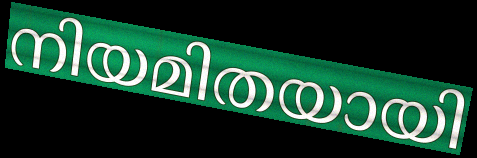
നിയമിതയായി